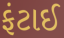
ફંટાઈ